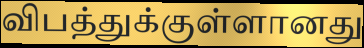
விபத்துக்குள்ளானது